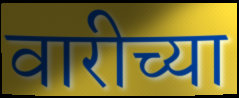
वारीच्या